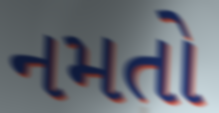
નમતો